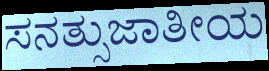
ಸನತ್ಸುಜಾತೀಯ